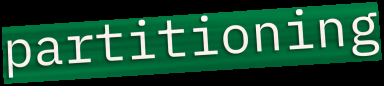
partitioning